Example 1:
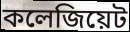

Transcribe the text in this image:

কলেজিয়েট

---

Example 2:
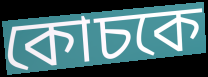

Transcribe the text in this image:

কোচকে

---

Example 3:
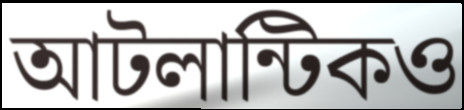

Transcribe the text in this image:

আটলান্টিকও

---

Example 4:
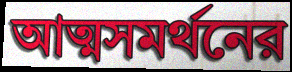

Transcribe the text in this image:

আত্মসমর্থনের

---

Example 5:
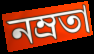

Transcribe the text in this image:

নম্রতা